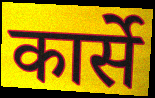
कार्से